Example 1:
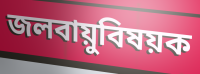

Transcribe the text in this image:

জলবায়ুবিষয়ক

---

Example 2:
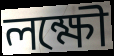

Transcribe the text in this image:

লক্ষৌ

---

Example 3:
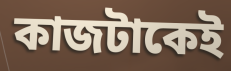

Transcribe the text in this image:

কাজটাকেই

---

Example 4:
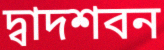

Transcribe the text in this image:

দ্বাদশবন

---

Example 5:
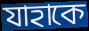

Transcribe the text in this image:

যাহাকে